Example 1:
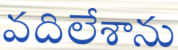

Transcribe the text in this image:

వదిలేశాను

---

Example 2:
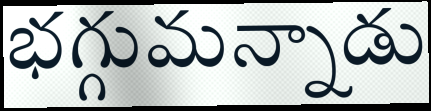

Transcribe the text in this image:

భగ్గుమన్నాడు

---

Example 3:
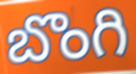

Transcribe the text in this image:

బొంగి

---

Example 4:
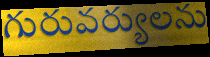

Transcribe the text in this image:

గురువర్యులను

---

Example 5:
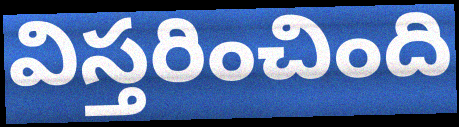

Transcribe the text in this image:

విస్తరించింది